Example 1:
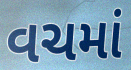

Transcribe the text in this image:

વચમાં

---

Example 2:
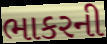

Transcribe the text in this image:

ભાકરની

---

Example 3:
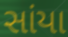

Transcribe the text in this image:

સાંયા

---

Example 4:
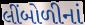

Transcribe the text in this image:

લીંબોળીનાં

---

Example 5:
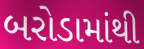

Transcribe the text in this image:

બરોડામાંથી